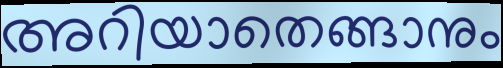
അറിയാതെങ്ങാനും